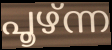
പൂഴ്ന്ന